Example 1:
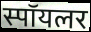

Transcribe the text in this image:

स्पॉयलर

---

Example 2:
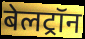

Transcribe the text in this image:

बेलट्रॉन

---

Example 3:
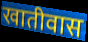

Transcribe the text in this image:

खातीवास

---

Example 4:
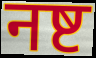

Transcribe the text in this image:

नष्ट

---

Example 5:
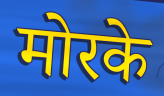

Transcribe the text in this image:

मोरके